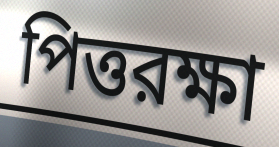
পিত্তরক্ষা